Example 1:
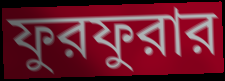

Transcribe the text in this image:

ফুরফুরার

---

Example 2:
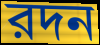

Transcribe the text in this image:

রদন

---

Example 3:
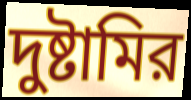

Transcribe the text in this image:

দুষ্টামির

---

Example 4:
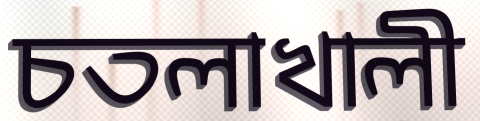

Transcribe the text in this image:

চতলাখালী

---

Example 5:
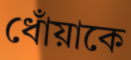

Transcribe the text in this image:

ধোঁয়াকে